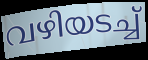
വഴിയടച്ച്